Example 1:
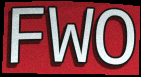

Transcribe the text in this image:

FWO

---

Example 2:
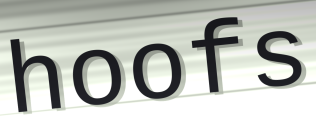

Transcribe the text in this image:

hoofs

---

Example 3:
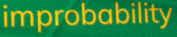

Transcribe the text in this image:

improbability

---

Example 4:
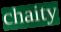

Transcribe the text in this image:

chaity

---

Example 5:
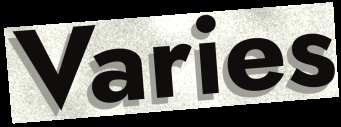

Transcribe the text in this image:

Varies